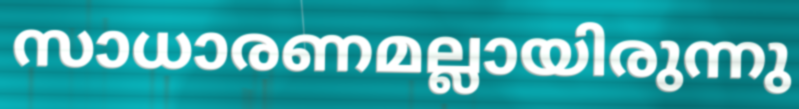
സാധാരണമല്ലായിരുന്നു